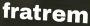
fratrem